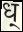
ध्